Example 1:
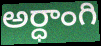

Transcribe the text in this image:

అర్ధాంగి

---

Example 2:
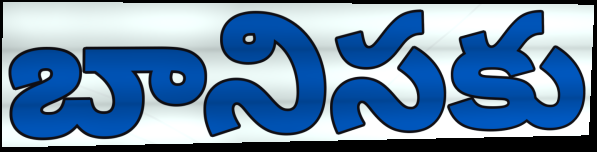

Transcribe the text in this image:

బానిసకు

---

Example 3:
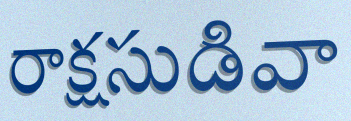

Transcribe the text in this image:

రాక్షసుడివా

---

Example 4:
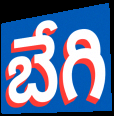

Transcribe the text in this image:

బేగి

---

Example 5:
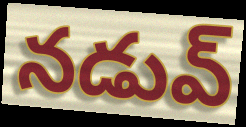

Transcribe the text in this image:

నడువ్